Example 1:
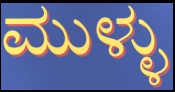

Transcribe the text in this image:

ಮುಳ್ಳು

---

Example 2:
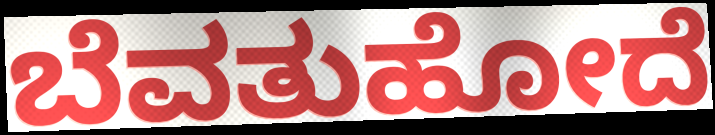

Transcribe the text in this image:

ಬೆವತುಹೋದೆ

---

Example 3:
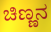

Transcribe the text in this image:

ಚಿಣ್ಣನ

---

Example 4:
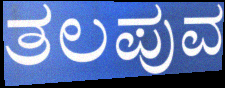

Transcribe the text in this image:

ತಲಪುವ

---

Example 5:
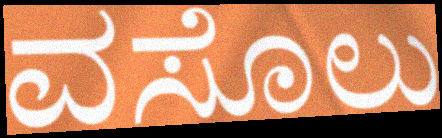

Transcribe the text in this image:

ವಸೊಲು